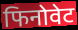
फिनोवेट